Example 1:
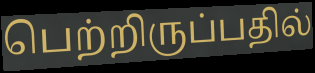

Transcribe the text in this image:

பெற்றிருப்பதில்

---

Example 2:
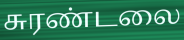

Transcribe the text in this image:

சுரண்டலை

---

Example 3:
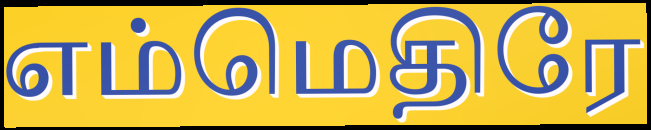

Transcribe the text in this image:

எம்மெதிரே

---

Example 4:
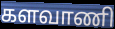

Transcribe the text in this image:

களவாணி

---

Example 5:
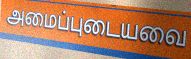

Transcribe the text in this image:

அமைப்புடையவை